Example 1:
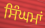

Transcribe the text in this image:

ਸਿੰਘਮਾਂ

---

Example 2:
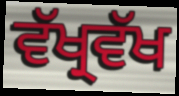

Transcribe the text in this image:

ਵੱਖ੍ਰਵੱਖ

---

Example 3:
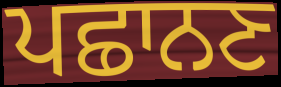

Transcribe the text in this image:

ਪਛਾਨਣ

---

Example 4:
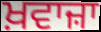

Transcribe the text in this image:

ਖ਼ਵਾਜ਼ਾ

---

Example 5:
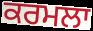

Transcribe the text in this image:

ਕਰਮਲਾ